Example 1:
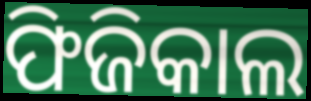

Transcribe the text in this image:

ଫିଜିକାଲ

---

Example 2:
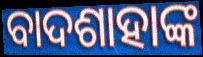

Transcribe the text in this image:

ବାଦଶାହାଙ୍କ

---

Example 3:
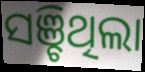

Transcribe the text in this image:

ସଞ୍ଚିଥିଲା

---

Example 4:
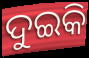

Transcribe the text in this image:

ଦୁଇକି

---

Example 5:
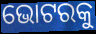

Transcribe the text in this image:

ଭୋଟରକୁ